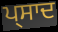
ਪ੍ਸਾਦ